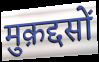
मुक़द्दसों